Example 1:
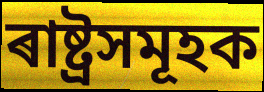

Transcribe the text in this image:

ৰাষ্ট্ৰসমূহক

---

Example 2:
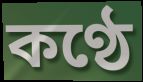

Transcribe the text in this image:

কণ্ঠে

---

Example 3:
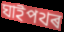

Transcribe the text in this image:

ঘাইপথৰ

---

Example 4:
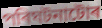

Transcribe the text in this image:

পৰিঘটনাটোৰ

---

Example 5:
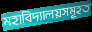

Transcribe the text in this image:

মহাবিদ্যালয়সমূহত